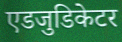
एडजुडिकेटर